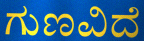
ಗುಣವಿದೆ